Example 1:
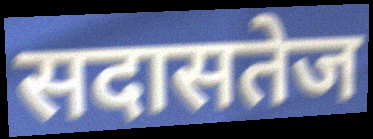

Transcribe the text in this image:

सदासतेज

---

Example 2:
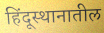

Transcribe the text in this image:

हिंदूस्थानातील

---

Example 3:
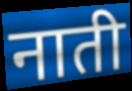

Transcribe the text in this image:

नाती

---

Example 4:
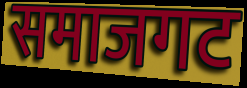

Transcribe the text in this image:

समाजगट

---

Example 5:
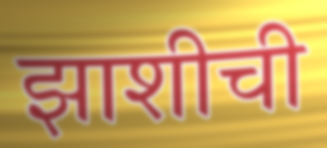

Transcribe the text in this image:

झाशीची